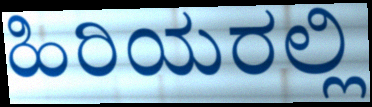
ಹಿರಿಯರಲ್ಲಿ